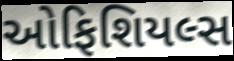
ઓફિશિયલ્સ